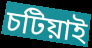
চটিয়াই